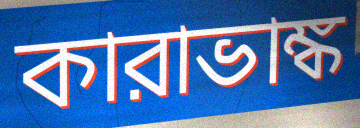
কারাভাঙ্ক